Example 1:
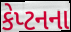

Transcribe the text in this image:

કેપ્ટનના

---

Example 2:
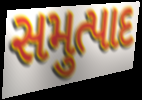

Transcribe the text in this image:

સમુત્પાદ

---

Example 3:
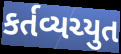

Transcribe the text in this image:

કર્તવ્યચ્યુત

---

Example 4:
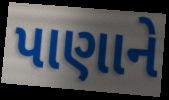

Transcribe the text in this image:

પાણાને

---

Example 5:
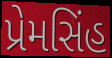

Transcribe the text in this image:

પ્રેમસિંહ